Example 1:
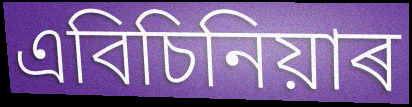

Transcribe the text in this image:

এবিচিনিয়াৰ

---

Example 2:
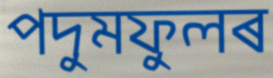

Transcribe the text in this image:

পদুমফুলৰ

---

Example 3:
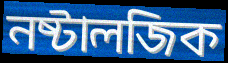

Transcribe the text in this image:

নষ্টালজিক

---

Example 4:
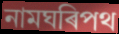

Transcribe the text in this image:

নামঘৰিপথ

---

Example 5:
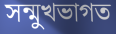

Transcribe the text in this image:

সন্মুখভাগত